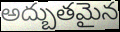
అద్బుతమైన